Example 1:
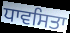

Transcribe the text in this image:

ਧਾਵਸਿਤਾ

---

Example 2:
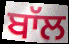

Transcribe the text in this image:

ਬਾੱਲ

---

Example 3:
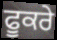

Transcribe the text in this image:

ਫੂਕਰੇ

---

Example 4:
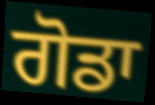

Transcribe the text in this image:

ਗੋਡਾ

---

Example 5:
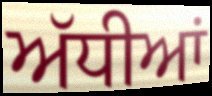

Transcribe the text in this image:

ਅੱਧੀਆਂ